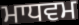
ਮਾਧਵਮ